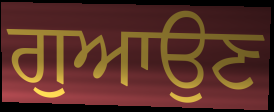
ਗੁਆਉਣ